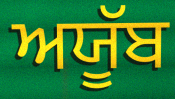
ਅਯੂੱਬ